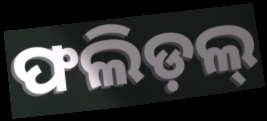
ଫଲିଡ଼ଲ୍